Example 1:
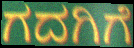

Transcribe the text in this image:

ಗದಗಿಗೆ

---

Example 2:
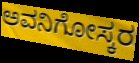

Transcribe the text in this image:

ಅವನಿಗೋಸ್ಕರ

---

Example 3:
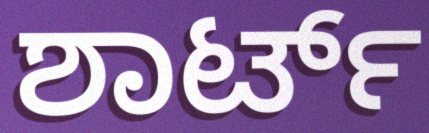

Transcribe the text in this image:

ಶಾರ್ಟ್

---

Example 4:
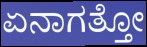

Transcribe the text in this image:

ಏನಾಗತ್ತೋ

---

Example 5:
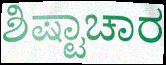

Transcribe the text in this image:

ಶಿಷ್ಟಾಚಾರ